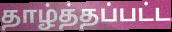
தாழ்த்தப்பட்ட